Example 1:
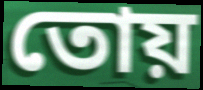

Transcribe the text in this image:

তোয়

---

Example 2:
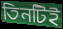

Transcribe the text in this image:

তিনটিই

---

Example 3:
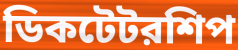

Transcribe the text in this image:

ডিকটেটরশিপ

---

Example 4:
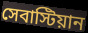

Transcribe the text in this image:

সেবাস্টিয়ান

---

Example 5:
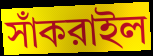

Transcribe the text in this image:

সাঁকরাইল